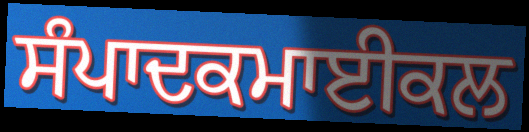
ਸੰਪਾਦਕਮਾਈਕਲ